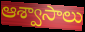
ఆశ్వాసాలు